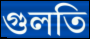
গুলতি